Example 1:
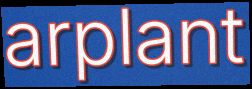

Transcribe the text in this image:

arplant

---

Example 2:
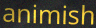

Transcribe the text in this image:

animish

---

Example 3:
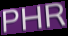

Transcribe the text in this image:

PHR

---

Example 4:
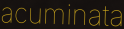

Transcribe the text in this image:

acuminata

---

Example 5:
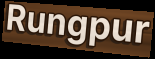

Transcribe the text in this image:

Rungpur